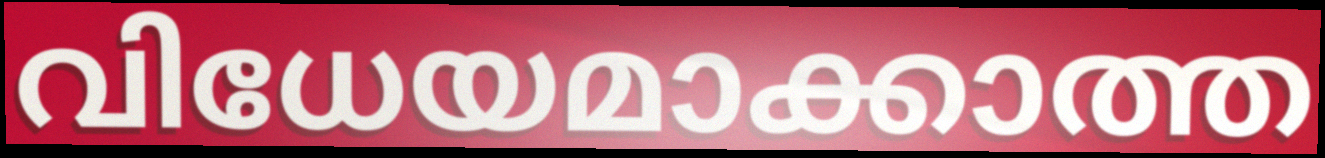
വിധേയമാക്കാത്ത